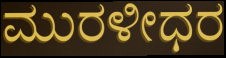
ಮುರಳೀಧರ